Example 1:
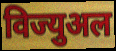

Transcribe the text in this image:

विज्युअल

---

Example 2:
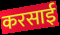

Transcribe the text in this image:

करसाई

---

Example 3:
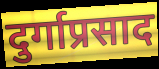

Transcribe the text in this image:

दुर्गाप्रसाद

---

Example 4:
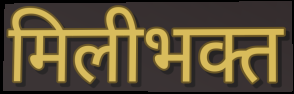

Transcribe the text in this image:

मिलीभक्त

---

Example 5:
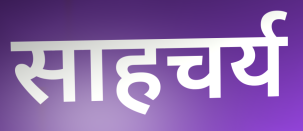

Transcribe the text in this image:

साहचर्य